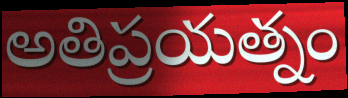
అతిప్రయత్నం